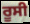
ਰੂਸੀ